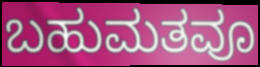
ಬಹುಮತವೂ